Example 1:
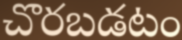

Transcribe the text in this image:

చొరబడటం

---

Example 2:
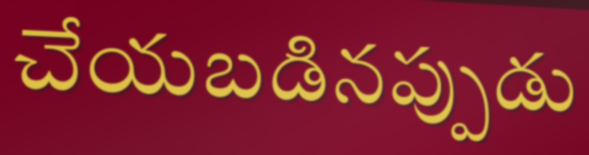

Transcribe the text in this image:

చేయబడినప్పుడు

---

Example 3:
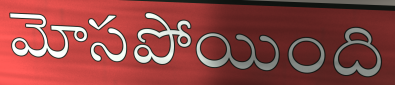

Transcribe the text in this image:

మోసపోయింది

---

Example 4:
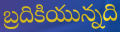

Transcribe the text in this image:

బ్రదికియున్నది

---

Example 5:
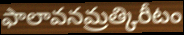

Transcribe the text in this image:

ఫాలావనమ్రత్కిరీటం